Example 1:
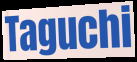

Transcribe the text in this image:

Taguchi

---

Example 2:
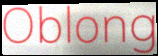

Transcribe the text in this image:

Oblong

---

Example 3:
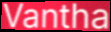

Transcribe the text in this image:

Vantha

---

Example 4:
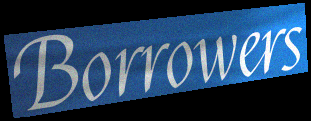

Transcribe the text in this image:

Borrowers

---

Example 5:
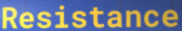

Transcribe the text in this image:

Resistance